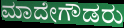
ಮಾದೇಗೌಡರು